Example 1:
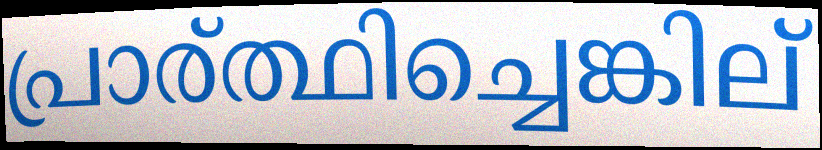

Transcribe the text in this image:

പ്രാര്ത്ഥിച്ചെങ്കില്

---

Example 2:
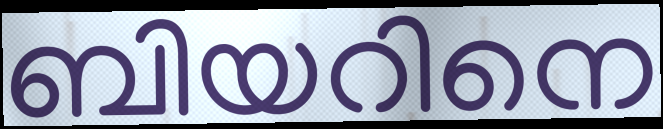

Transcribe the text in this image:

ബിയറിനെ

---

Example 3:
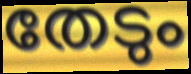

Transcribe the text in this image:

തേടും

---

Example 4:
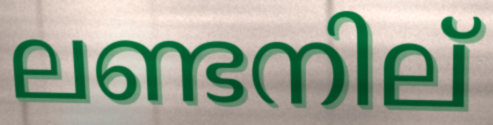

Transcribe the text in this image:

ലണ്ടനില്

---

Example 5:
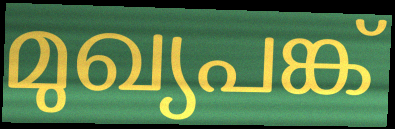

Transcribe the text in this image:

മുഖ്യപങ്ക്